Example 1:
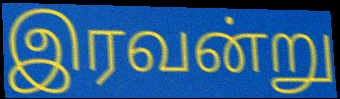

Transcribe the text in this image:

இரவன்று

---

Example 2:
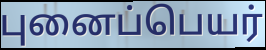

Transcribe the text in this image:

புனைப்பெயர்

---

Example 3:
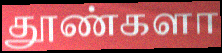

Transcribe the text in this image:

தூண்களா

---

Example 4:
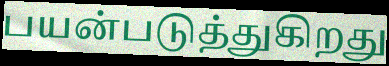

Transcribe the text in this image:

பயன்படுத்துகிறது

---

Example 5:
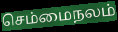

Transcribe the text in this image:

செம்மைநலம்